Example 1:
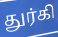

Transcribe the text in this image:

துர்கி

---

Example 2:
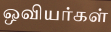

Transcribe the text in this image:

ஒவியர்கள்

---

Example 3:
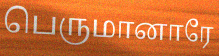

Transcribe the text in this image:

பெருமானாரே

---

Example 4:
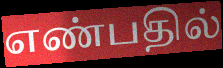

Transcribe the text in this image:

எண்பதில்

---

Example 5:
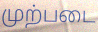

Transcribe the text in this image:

முற்படை